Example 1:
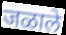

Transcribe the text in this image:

जळाले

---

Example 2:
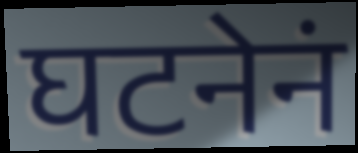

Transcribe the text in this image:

घटनेनं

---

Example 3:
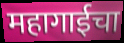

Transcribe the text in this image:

महागाईचा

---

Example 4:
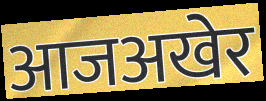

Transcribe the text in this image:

आजअखेर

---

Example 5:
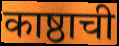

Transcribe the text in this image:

काष्ठाची